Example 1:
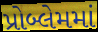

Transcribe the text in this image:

પ્રોબ્લેમમાં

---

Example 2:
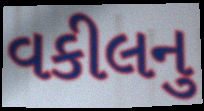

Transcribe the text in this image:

વકીલનુ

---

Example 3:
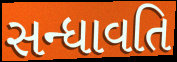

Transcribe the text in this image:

સન્ધાવતિ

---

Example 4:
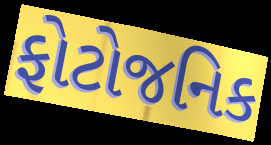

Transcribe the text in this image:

ફોટોજનિક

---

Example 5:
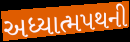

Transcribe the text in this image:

અધ્યાત્મપથની